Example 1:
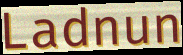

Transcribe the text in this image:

Ladnun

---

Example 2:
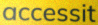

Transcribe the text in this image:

accessit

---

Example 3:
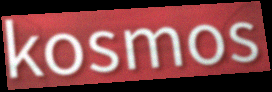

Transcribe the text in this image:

kosmos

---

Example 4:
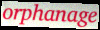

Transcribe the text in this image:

orphanage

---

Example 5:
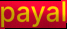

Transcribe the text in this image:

payal